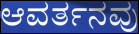
ಆವರ್ತನವು